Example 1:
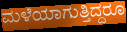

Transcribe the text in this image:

ಮಳೆಯಾಗುತ್ತಿದ್ದರೂ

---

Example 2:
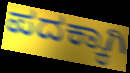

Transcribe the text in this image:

ಪದಕ್ಕಾಗಿ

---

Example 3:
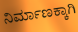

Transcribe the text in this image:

ನಿರ್ಮಾಣಕ್ಕಾಗಿ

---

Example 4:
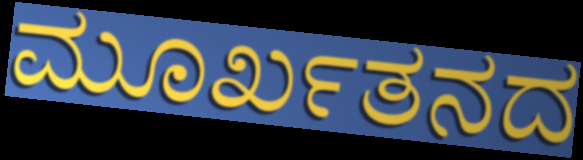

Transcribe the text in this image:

ಮೂರ್ಖತನದ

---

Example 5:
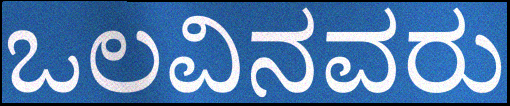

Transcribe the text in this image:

ಒಲವಿನವರು